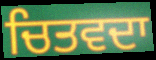
ਚਿਤਵਦਾ